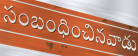
సంబంధించినవాడు